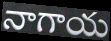
నాగాయ